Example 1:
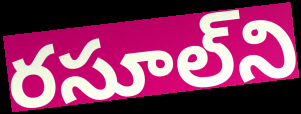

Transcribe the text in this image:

రసూల్‌ని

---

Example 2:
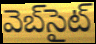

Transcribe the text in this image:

వెబ్‌సైట్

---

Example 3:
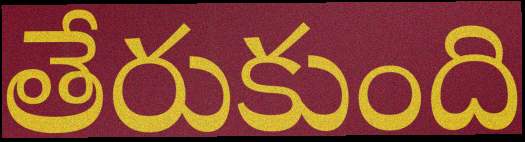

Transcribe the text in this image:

తేరుకుంది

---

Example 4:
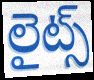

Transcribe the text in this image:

లైట్స్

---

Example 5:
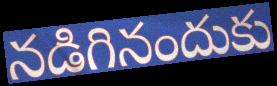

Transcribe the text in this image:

నడిగినందుకు